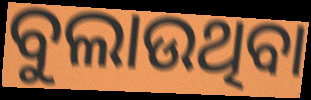
ବୁଲାଉଥିବା